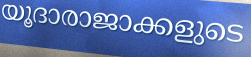
യൂദാരാജാക്കളുടെ